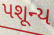
પશૂન્ય